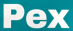
Pex